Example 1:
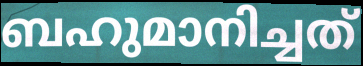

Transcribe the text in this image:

ബഹുമാനിച്ചത്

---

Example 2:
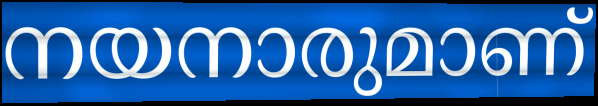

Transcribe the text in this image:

നയനാരുമാണ്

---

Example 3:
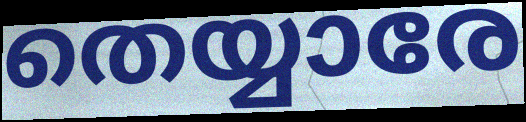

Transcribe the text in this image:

തെയ്യാരേ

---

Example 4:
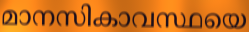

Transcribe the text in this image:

മാനസികാവസ്ഥയെ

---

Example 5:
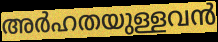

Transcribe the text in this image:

അർഹതയുള്ളവൻ